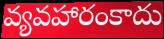
వ్యవహారంకాదు